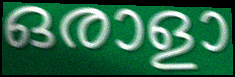
ഒരാളാ